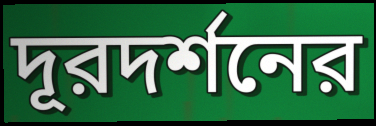
দূরদর্শনের